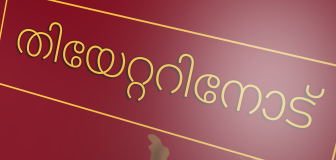
തിയേറ്ററിനോട്